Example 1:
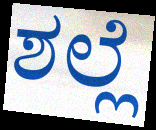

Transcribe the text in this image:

ಶಲ್ಲೆ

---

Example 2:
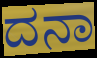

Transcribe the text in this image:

ದನಾ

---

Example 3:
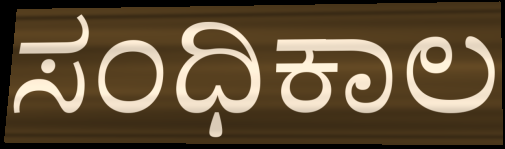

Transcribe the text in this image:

ಸಂಧಿಕಾಲ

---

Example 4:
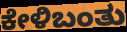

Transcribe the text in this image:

ಕೇಳಿಬಂತು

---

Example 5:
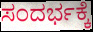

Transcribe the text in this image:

ಸಂದರ್ಭಕ್ಕೆ